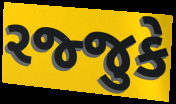
રજ્જુકે